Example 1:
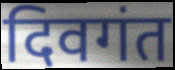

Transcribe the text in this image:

दिवगंत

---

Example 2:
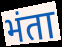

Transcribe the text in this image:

भंता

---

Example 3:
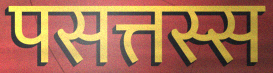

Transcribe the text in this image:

पसत्तस्स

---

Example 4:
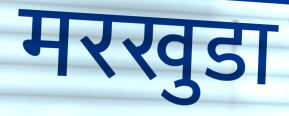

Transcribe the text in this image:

मरखुडा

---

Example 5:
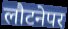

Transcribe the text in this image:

लौटनेपर